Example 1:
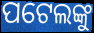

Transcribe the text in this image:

ପଟେଲଙ୍କୁ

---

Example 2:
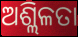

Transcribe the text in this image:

ଅଶ୍ଲିଳତା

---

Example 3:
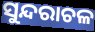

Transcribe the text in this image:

ସୁନ୍ଦରାଚଳ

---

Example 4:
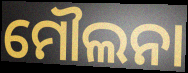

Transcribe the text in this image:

ମୌଲନା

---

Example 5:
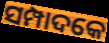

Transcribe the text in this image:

ସମ୍ପାଦକେ